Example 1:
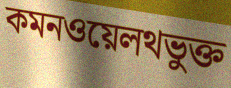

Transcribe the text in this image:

কমনওয়েলথভুক্ত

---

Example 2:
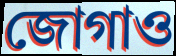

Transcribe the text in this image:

জোগাও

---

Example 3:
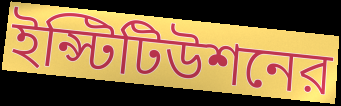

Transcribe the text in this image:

ইন্স্টিটিউশনের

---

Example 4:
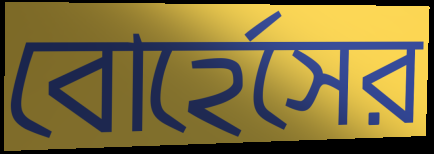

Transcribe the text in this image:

বোর্হেসের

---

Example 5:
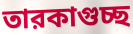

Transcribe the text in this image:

তারকাগুচ্ছ